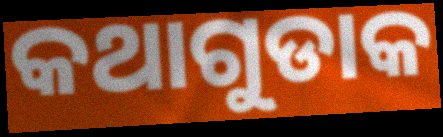
କଥାଗୁଡାକ